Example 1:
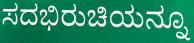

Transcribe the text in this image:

ಸದಭಿರುಚಿಯನ್ನೂ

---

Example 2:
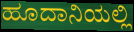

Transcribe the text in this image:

ಹೂದಾನಿಯಲ್ಲಿ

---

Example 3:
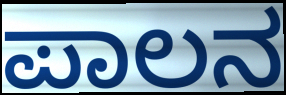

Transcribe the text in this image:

ಪಾಲನ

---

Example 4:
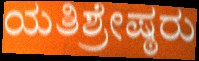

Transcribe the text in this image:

ಯತಿಶ್ರೇಷ್ಠರು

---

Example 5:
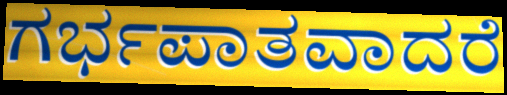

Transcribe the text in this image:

ಗರ್ಭಪಾತವಾದರೆ